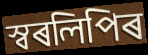
স্বৰলিপিৰ